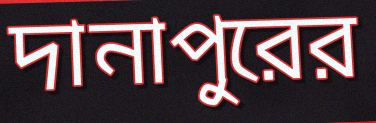
দানাপুরের